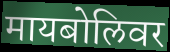
मायबोलिवर